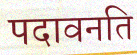
पदावनति